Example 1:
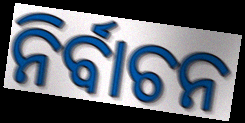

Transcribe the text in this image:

ନିର୍ବାଚନ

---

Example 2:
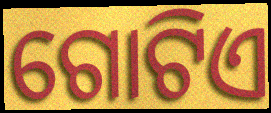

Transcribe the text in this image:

ଗୋଟିଏ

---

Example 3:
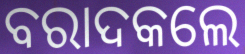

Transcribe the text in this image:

ବରାଦକଲେ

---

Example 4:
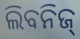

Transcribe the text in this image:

ଲିବନିଜ୍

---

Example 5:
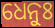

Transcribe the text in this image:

ଧେନୁଃ